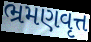
ભ્રમણવૃત્ત